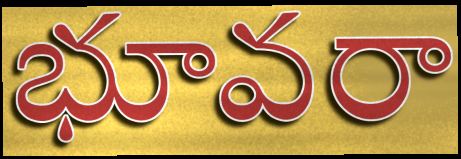
భూవరా